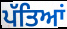
ਪੱਤਿਆਂ